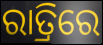
ରାତ୍ରିରେ